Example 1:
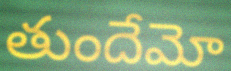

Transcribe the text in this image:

తుందేమో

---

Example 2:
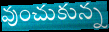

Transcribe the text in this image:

వుంచుకున్న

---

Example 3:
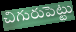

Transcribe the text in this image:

చిగురుపెట్టు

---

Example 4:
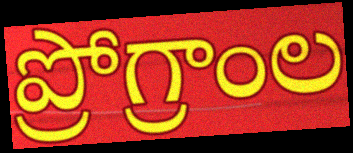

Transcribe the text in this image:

ప్రోగ్రాంల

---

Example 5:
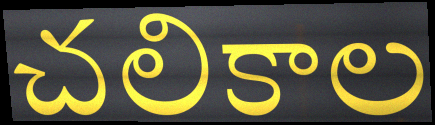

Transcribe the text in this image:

చలికాల